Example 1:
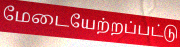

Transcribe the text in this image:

மேடையேற்றப்பட்டு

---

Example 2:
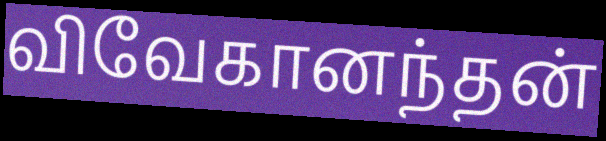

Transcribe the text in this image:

விவேகானந்தன்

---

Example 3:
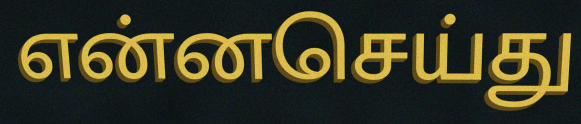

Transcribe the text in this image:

என்னசெய்து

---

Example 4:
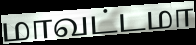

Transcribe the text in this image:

மாவட்டமா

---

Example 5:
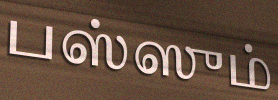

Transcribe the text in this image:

பஸ்ஸும்